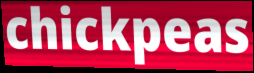
chickpeas